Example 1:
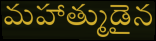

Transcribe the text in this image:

మహాత్ముడైన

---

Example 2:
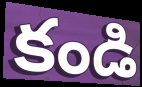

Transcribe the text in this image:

కండి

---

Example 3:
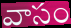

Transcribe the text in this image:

వాసం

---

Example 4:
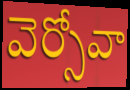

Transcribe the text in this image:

వెర్సోవా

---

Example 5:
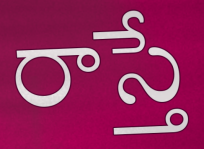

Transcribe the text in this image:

రాస్తే